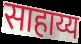
साहाय्य